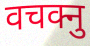
वचक्नु